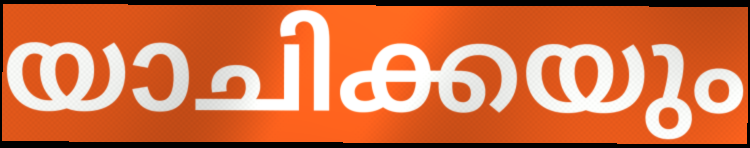
യാചിക്കയും